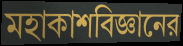
মহাকাশবিজ্ঞানের